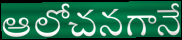
ఆలోచనగానే